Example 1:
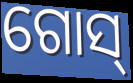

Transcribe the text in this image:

ଗୋସ୍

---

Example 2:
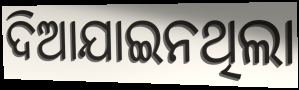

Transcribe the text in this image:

ଦିଆଯାଇନଥିଲା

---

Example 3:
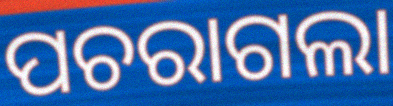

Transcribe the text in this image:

ପଚରାଗଲା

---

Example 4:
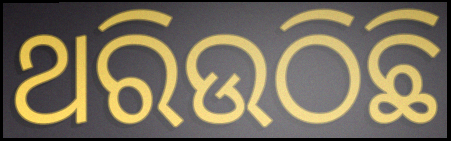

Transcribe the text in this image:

ଥରିଉଠିଛି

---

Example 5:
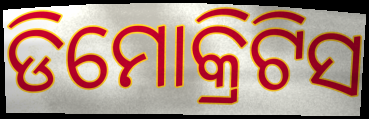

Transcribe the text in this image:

ଡିମୋକ୍ରିଟିସ